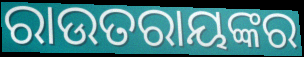
ରାଉତରାୟଙ୍କର